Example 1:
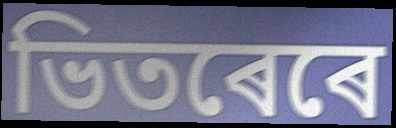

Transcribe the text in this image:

ভিতৰেৰে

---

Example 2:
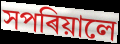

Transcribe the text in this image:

সপৰিয়ালে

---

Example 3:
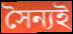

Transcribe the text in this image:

সৈন্যই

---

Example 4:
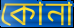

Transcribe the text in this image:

কোনা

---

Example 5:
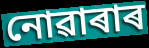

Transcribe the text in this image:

নোৱাৰাৰ